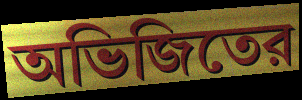
অভিজিতের